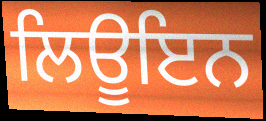
ਲਿਊਇਨ